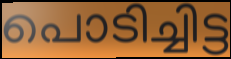
പൊടിച്ചിട്ട